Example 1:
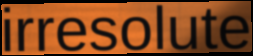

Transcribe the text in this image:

irresolute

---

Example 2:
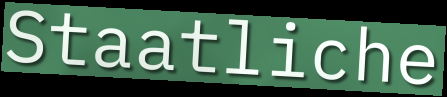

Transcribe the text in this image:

Staatliche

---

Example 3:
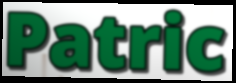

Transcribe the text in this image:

Patric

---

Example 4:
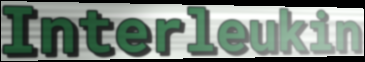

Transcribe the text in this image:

Interleukin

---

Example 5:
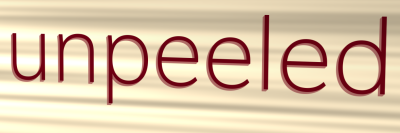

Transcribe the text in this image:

unpeeled